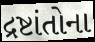
દ્રષ્ટાંતોના